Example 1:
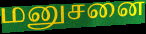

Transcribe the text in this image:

மனுசனை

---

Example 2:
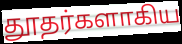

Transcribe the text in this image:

தூதர்களாகிய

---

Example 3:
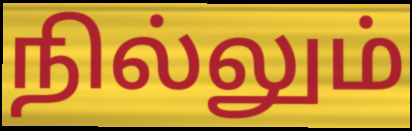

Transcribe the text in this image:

நில்லும்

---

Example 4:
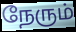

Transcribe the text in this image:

நேரும்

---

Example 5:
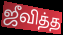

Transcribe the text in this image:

ஜீவித்த